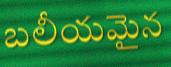
బలీయమైన